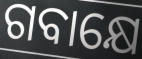
ଗବାକ୍ଷେ